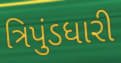
ત્રિપુંડધારી